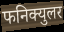
फनिक्युलर